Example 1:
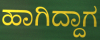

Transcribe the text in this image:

ಹಾಗಿದ್ದಾಗ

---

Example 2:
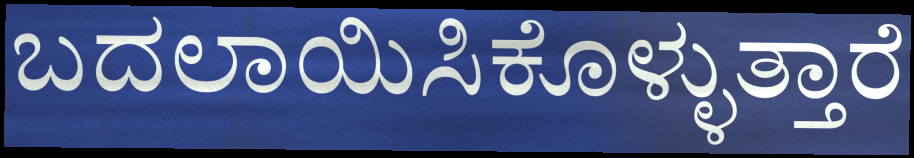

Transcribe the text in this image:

ಬದಲಾಯಿಸಿಕೊಳ್ಳುತ್ತಾರೆ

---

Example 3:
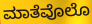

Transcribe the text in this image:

ಮಾತೆವೊಲೊ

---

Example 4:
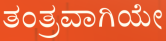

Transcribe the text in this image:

ತಂತ್ರವಾಗಿಯೇ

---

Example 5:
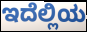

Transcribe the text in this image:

ಇದೆಲ್ಲಿಯ